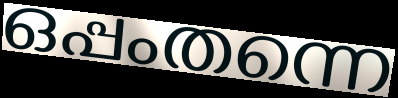
ഒപ്പംതന്നെ